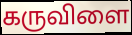
கருவிளை